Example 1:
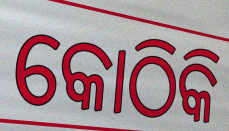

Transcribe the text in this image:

କୋଠିକି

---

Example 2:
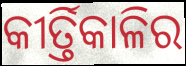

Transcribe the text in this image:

କୀର୍ତ୍ତିକାଳିର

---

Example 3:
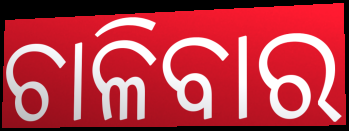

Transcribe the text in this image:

ଚାଳିବାର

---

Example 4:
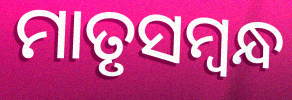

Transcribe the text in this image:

ମାତୃସମ୍ବନ୍ଧ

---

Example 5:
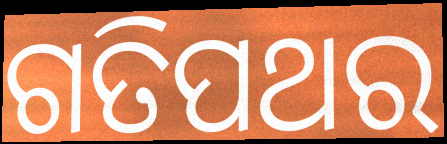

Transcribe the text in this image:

ଗତିପଥର